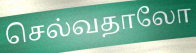
செல்வதாலோ